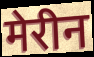
मेरीन